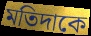
মতিদাকে